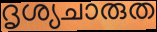
ദൃശ്യചാരുത